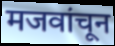
मजवांचून